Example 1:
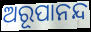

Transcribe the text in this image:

ଅରୂପାନନ୍ଦ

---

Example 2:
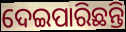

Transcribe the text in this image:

ଦେଇପାରିଛନ୍ତି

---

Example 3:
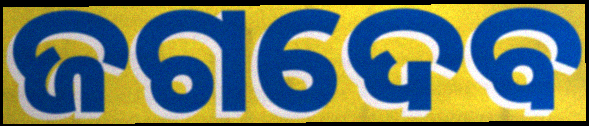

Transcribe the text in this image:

ଜଗଦେବ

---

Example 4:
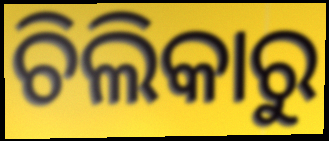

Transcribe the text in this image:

ଚିଲିକାରୁ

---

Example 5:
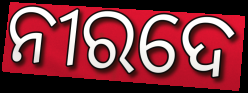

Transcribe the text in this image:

ନୀରଦେ